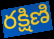
రక్షిణి